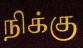
நிக்கு